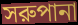
সরুপানা